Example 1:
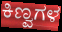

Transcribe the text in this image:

ಕಿಣ್ವಗಳ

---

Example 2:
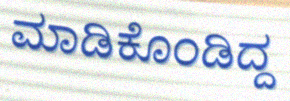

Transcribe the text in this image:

ಮಾಡಿಕೊಂಡಿದ್ದ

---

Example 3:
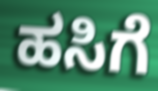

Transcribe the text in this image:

ಹಸಿಗೆ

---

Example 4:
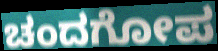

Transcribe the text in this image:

ಚಂದಗೋಪ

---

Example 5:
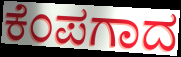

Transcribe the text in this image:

ಕೆಂಪಗಾದ